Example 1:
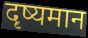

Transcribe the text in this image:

दृष्यमान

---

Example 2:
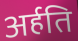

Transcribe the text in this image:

अर्हति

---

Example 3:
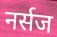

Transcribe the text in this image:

नर्सज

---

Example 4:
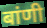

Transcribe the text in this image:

बांणी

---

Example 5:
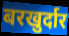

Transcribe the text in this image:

बरखुर्दार